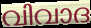
വിവാദ